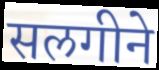
सलगीने